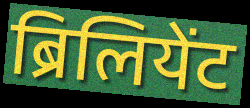
ब्रिलियेंट